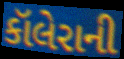
કૉલેરાની